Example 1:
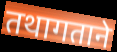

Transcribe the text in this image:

तथागताने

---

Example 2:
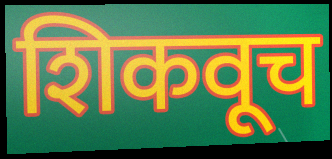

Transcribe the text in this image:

शिकवूच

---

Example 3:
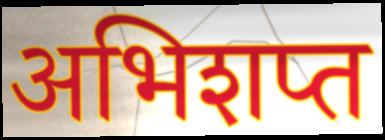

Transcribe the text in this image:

अभिशप्त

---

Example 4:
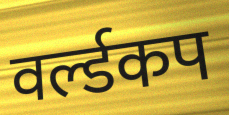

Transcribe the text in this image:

वर्ल्डकप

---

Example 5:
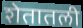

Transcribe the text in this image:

शेतातली